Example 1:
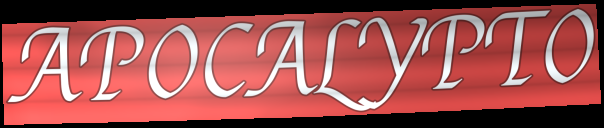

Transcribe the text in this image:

APOCALYPTO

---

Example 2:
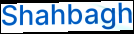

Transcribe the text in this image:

Shahbagh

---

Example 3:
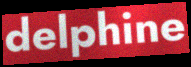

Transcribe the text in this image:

delphine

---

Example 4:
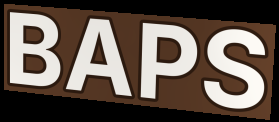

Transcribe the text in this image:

BAPS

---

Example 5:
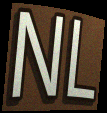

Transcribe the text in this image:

NL